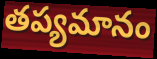
తప్యమానం